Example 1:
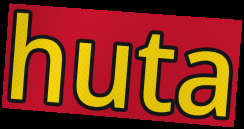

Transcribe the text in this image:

huta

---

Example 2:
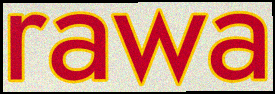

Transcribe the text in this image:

rawa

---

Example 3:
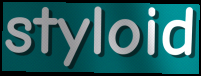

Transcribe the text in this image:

styloid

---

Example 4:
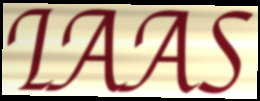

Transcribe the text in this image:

IAAS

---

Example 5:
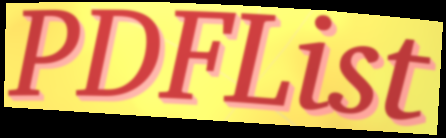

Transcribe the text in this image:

PDFList